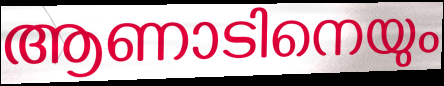
ആണാടിനെയും